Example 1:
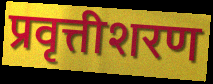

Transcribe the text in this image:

प्रवृत्तीशरण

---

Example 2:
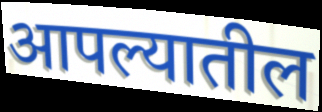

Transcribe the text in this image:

आपल्यातील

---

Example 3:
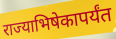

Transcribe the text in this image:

राज्याभिषेकापर्यंत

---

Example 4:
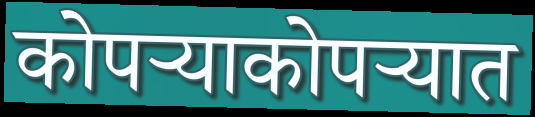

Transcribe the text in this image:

कोपऱ्याकोपऱ्यात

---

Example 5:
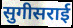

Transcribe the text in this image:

सुगीसराई